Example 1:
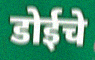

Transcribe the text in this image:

डोईचे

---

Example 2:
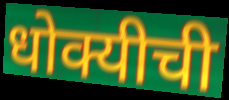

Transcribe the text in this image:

धोक्यीची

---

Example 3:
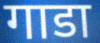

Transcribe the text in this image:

गाडा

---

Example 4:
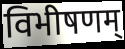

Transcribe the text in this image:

विभीषणम्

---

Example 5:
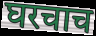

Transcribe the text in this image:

घरचाच